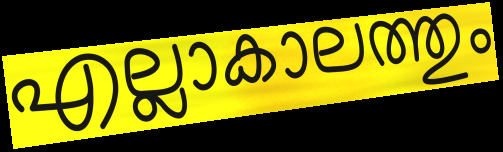
എല്ലാകാലത്തും